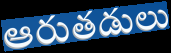
ఆరుతడులు